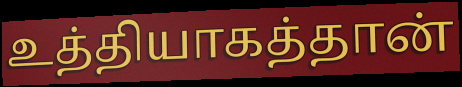
உத்தியாகத்தான்